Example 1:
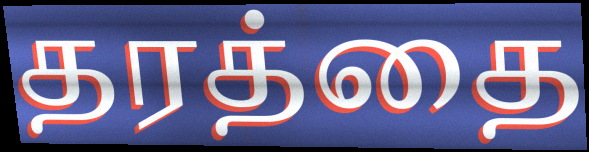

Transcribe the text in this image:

தரத்தை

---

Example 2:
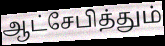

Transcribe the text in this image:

ஆட்சேபித்தும்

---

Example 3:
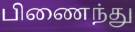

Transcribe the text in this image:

பிணைந்து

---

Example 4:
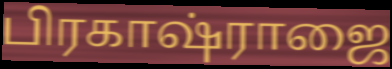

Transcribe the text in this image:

பிரகாஷ்ராஜை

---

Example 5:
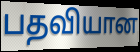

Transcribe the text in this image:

பதவியான